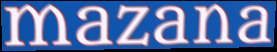
mazana